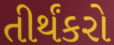
તીર્થંકરો